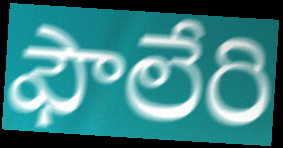
ఫౌలేరి